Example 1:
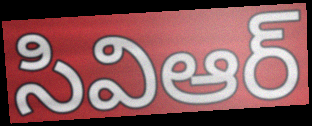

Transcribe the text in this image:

సివిఆర్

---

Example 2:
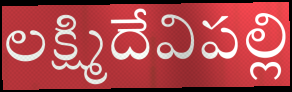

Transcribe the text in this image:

లక్ష్మిదేవిపల్లి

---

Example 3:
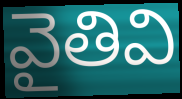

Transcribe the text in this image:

వైతివి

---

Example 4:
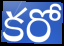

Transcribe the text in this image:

కరో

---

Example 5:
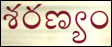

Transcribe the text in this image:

శరణ్యం